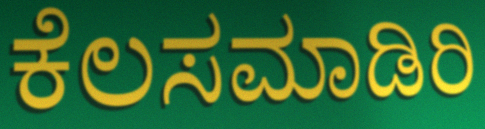
ಕೆಲಸಮಾಡಿರಿ